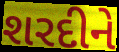
શરદીને